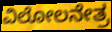
ವಿಲೋಲನೇತ್ರ